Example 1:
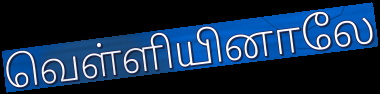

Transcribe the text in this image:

வெள்ளியினாலே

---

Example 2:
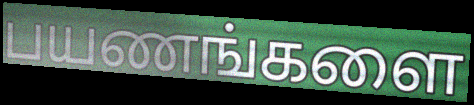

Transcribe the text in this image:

பயணங்களை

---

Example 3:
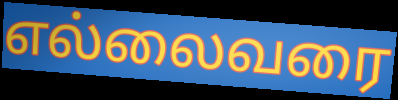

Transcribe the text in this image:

எல்லைவரை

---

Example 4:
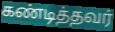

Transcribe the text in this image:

கண்டித்தவர்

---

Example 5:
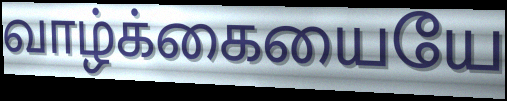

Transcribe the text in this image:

வாழ்க்கையையே